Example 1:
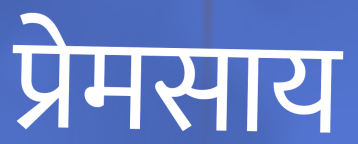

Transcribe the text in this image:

प्रेमसाय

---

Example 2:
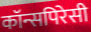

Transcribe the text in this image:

कॉन्सपिरेसी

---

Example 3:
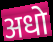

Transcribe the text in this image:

अधो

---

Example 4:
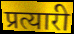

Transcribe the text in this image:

प्रत्यारी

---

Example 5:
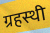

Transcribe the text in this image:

ग्रहस्थी